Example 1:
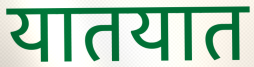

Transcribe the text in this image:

यातयात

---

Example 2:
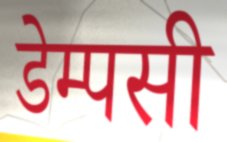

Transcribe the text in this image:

डेम्पसी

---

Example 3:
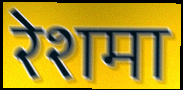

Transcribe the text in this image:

रेशमा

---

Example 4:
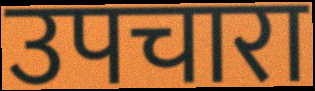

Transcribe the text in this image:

उपचारा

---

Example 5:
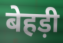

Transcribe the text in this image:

बेहड़ी